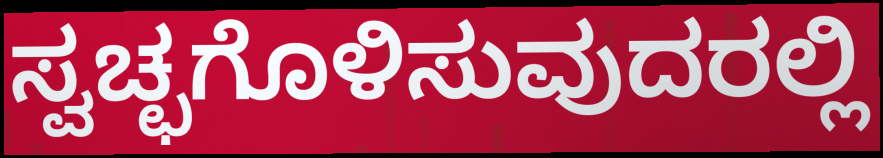
ಸ್ವಚ್ಛಗೊಳಿಸುವುದರಲ್ಲಿ